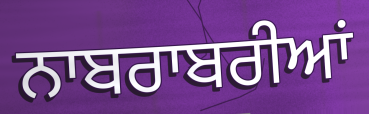
ਨਾਬਰਾਬਰੀਆਂ